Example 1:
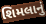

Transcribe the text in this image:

શિમલાનું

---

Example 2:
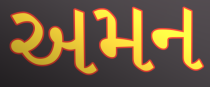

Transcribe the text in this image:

અમન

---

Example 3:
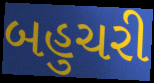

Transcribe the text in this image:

બહુચરી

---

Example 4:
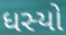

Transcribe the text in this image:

ધસ્યો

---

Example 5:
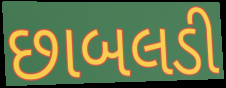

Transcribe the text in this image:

છાબલડી